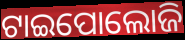
ଟାଇପୋଲୋଜି